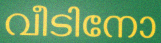
വീടിനോ